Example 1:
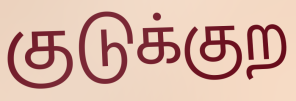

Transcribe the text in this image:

குடுக்குற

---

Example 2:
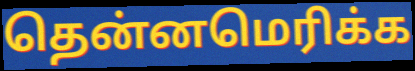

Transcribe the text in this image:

தென்னமெரிக்க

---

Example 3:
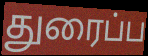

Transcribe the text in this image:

துரைப்ப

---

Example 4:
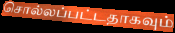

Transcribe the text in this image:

சொல்லப்பட்டதாகவும்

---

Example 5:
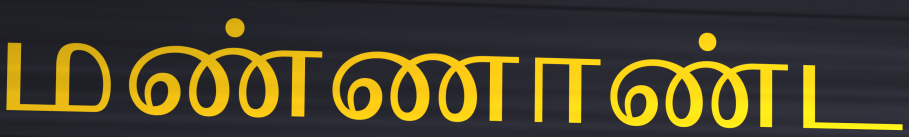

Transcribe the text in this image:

மண்ணாண்ட